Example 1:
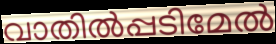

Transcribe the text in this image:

വാതിൽപ്പടിമേൽ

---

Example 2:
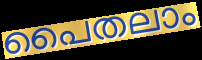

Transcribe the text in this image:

പൈതലാം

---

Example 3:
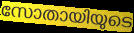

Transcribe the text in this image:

സോതായിയുടെ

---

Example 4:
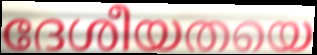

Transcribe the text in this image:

ദേശീയതയെ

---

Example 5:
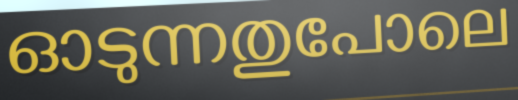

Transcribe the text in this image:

ഓടുന്നതുപോലെ